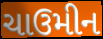
ચાઉમીન